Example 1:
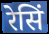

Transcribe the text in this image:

रेसिं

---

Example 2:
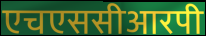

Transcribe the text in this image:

एचएससीआरपी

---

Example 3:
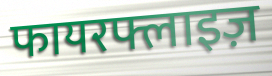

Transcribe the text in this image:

फायरफ्लाइज़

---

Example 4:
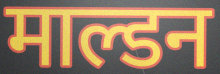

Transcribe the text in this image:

माल्डन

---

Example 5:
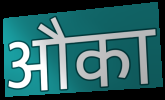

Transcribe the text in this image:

औका